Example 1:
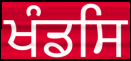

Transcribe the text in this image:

ਖੰਡਸਿ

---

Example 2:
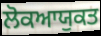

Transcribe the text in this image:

ਲੋਕਆਯੁਕਤ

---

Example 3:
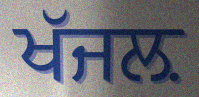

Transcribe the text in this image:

ਖੱਜਲ਼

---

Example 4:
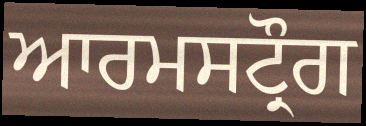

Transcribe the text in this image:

ਆਰਮਸਟ੍ਰੌਗ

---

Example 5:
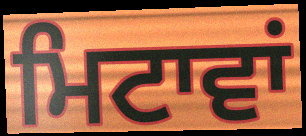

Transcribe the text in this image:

ਮਿਟਾਵਾਂ